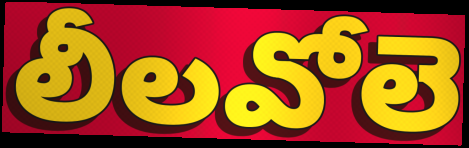
లీలవోలె